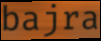
bajra